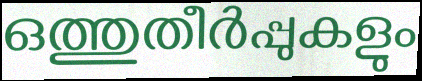
ഒത്തുതീർപ്പുകളും